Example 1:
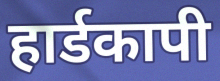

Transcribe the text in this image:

हार्डकापी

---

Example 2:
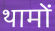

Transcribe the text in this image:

थामों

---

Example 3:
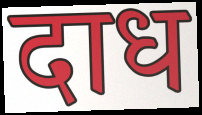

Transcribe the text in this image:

दाध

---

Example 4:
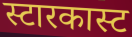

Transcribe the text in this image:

स्टारकास्ट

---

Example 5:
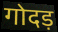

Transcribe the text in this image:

गोदड़